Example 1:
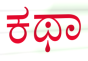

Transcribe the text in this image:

ಕಥಾ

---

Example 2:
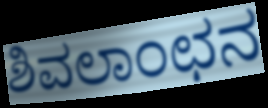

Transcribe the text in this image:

ಶಿವಲಾಂಛನ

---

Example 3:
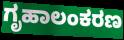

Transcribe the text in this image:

ಗೃಹಾಲಂಕರಣ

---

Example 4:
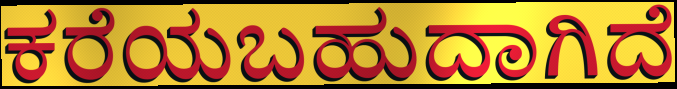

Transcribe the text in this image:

ಕರೆಯಬಹುದಾಗಿದೆ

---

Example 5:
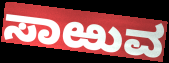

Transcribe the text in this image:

ಸಾಱುವ